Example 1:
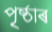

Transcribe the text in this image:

পৃষ্ঠাৰ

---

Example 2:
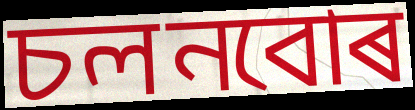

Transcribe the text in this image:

চলনবোৰ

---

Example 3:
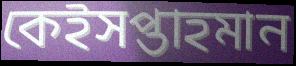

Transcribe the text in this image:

কেইসপ্তাহমান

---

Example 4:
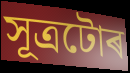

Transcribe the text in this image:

সূত্ৰটোৰ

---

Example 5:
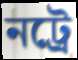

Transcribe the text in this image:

নট্ৰে